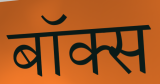
बॉक्स